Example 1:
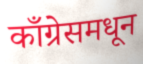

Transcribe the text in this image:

काँग्रेसमधून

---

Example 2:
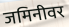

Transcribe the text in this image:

जमिनीवर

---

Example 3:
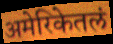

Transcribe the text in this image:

अमेरिकेतलं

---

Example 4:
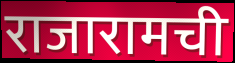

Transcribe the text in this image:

राजारामची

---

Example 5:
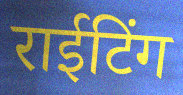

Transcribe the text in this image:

राईटिंग